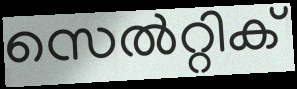
സെൽറ്റിക്